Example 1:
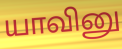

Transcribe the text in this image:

யாவினு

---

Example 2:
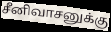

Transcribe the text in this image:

சீனிவாசனுக்கு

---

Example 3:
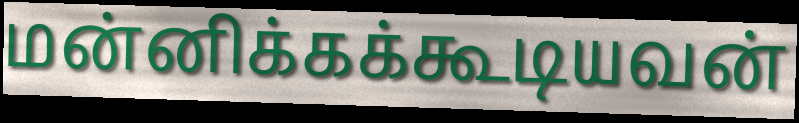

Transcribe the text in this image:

மன்னிக்கக்கூடியவன்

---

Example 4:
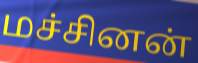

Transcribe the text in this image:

மச்சினன்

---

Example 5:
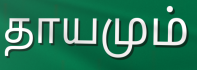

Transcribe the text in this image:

தாயமும்